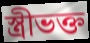
স্ত্রীভক্ত